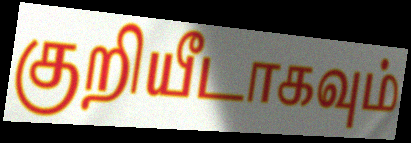
குறியீடாகவும்